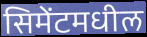
सिमेंटमधील